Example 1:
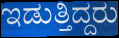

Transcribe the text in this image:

ಇಡುತ್ತಿದ್ದರು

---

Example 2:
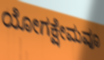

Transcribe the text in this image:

ಯೋಗಕ್ಷೇಮವೂ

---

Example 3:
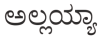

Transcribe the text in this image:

ಅಲ್ಲಯ್ಯಾ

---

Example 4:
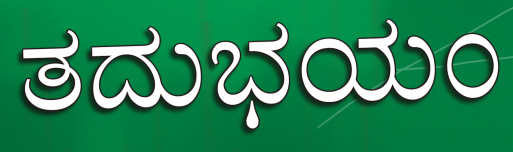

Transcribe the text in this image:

ತದುಭಯಂ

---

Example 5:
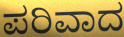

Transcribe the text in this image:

ಪರಿವಾದ